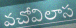
వచోవిలాస